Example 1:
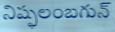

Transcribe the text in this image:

నిష్ఫలంబగున్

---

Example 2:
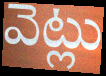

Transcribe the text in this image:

వెట్లు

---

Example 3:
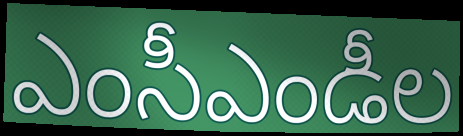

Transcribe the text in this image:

ఎంసీఎండీల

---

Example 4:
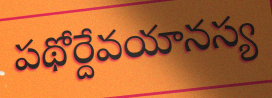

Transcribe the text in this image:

పథోర్దేవయానస్య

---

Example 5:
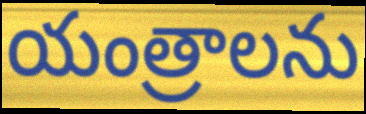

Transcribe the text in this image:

యంత్రాలను